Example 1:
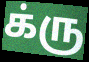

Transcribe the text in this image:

க்ரு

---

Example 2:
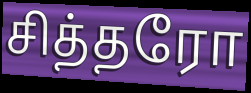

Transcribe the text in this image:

சித்தரோ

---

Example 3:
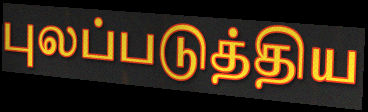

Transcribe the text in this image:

புலப்படுத்திய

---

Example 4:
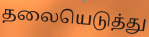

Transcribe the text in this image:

தலையெடுத்து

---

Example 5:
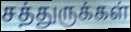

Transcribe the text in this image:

சத்துருக்கள்